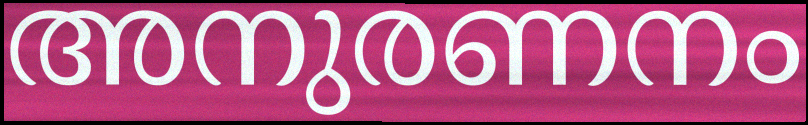
അനുരണനം